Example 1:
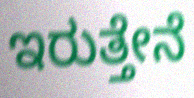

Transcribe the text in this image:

ಇರುತ್ತೇನೆ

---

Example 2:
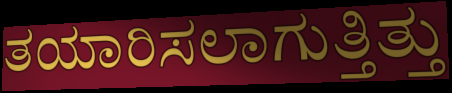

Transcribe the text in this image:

ತಯಾರಿಸಲಾಗುತ್ತಿತ್ತು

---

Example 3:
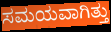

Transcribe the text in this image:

ಸಮಯವಾಗಿತ್ತು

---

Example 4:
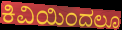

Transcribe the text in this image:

ಕಿವಿಯಿಂದಲೂ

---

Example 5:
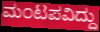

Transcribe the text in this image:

ಮಂಟಪವಿದ್ದು